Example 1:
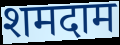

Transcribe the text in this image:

शमदाम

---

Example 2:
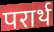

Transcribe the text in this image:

परार्थ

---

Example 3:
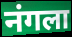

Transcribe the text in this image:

नंगला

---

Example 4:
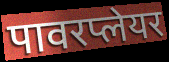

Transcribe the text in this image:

पावरप्लेयर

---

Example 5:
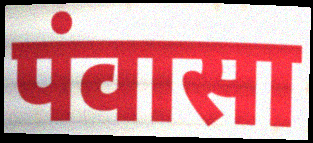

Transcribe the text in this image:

पंवासा